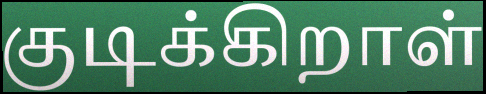
குடிக்கிறாள்